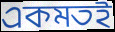
একমতই